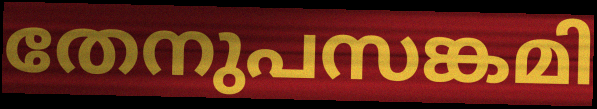
തേനുപസങ്കമി